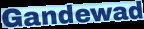
Gandewad